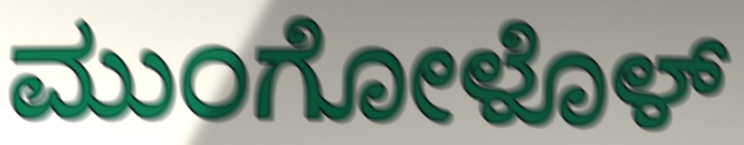
ಮುಂಗೋಳೊಳ್